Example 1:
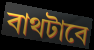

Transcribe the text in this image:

বাথটাবে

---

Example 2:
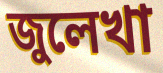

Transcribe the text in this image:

জুলেখা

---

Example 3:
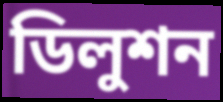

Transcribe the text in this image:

ডিলুশন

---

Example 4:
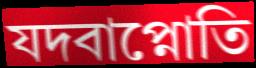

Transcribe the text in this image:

যদবাপ্নোতি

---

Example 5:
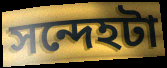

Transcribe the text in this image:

সন্দেহটা